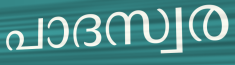
പാദസ്വര